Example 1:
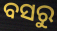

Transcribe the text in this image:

ବସରୁ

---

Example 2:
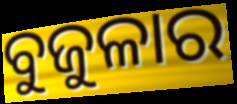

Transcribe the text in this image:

ବୁଜୁଳାର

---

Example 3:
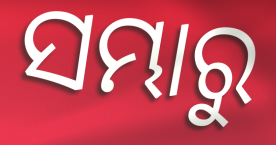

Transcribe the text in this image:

ସମ୍ଭାରୁ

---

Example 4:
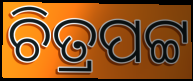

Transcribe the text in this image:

ଚିତ୍ରପଟ୍ଟ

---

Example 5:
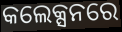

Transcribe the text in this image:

କଲେକ୍ସନରେ